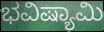
ಭವಿಷ್ಯಾಮಿ